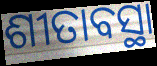
ଶୀତାବସ୍ଥା